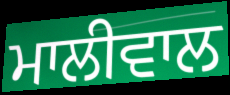
ਮਾਲੀਵਾਲ